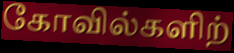
கோவில்களிற்